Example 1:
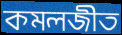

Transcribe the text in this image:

কমলজীত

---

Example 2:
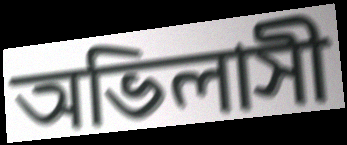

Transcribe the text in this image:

অভিলাসী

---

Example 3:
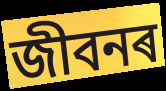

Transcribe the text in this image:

জীবনৰ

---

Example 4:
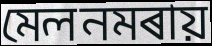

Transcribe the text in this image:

মেলনমৰায়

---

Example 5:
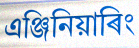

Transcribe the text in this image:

এঞ্জিনিয়াৰিং